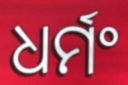
ଧର୍ମଂ